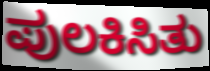
ಪುಲಕಿಸಿತು